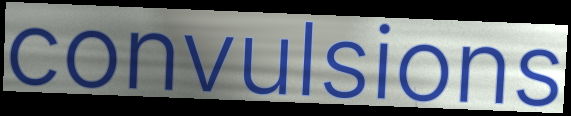
convulsions